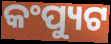
କଂପ୍ୟୁଟ